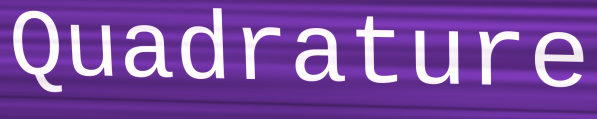
Quadrature